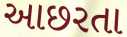
આછરતા